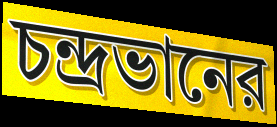
চন্দ্রভানের